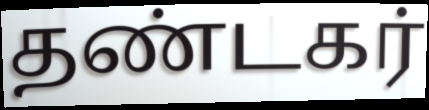
தண்டகர்